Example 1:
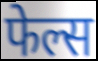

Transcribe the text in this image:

फेल्स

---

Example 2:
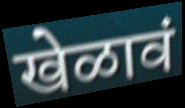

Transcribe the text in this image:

खेळावं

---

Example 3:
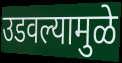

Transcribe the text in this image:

उडवल्यामुळे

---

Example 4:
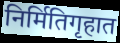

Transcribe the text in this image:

निर्मितिगृहात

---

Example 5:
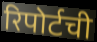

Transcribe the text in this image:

रिपोर्टची